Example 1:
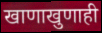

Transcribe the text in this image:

खाणाखुणाही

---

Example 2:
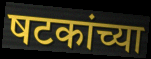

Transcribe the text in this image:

षटकांच्या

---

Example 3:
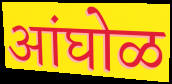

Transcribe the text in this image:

आंघोळ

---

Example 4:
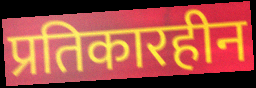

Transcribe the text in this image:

प्रतिकारहीन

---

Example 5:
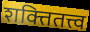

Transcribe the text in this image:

शक्तितत्त्व